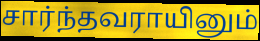
சார்ந்தவராயினும்